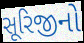
સૂરિજીનો